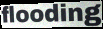
flooding